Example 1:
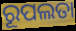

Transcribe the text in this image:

ରୂପଲତା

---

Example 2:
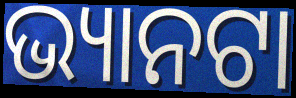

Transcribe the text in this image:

ଭ୍ୟାନଟା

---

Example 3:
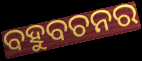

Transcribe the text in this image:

ବହୁବଚନର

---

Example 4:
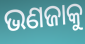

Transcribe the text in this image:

ଭଣଜାକୁ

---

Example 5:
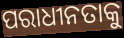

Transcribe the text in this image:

ପରାଧୀନତାକୁ